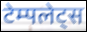
टेम्पलेट्स